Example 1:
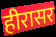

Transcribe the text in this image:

हीरासर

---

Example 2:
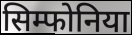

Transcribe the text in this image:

सिम्फोनिया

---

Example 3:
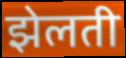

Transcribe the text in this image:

झेलती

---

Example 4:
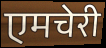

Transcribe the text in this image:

एमचेरी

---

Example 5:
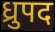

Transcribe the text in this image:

ध्रुपद